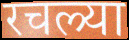
रचल्या